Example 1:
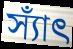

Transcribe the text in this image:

স্যাঁৎ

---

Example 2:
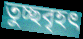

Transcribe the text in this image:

তুচ্ছবৃহৎ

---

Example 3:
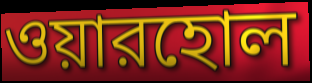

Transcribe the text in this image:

ওয়ারহোল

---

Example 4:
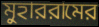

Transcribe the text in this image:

মুহাররামের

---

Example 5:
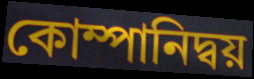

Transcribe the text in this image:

কোম্পানিদ্বয়